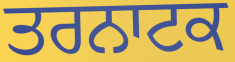
ਤਰਨਾਟਕ